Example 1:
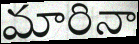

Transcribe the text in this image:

మారినా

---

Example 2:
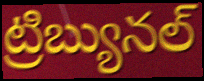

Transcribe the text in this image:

ట్రిబ్యునల్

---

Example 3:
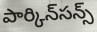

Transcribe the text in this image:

పార్కిన్‌సన్స్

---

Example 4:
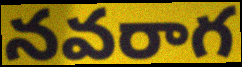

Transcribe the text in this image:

నవరాగ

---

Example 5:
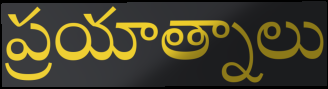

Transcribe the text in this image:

ప్రయాత్నాలు